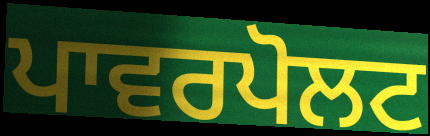
ਪਾਵਰਪੋਲਟ